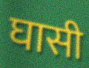
घासी